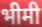
भीमी